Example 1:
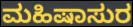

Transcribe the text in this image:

ಮಹಿಷಾಸುರ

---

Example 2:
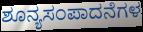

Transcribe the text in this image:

ಶೂನ್ಯಸಂಪಾದನೆಗಳ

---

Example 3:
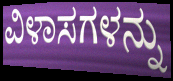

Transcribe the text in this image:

ವಿಳಾಸಗಳನ್ನು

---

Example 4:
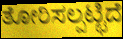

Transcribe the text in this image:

ತೋರಿಸಲ್ಪಟ್ಟಿದೆ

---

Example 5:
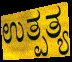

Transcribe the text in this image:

ಉತ್ಪತ್ಯ